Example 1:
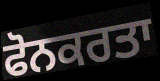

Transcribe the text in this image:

ਫੋਨਕਰਤਾ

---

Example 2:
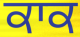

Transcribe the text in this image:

ਕਾਕ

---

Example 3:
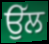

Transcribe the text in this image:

ਉੱਲ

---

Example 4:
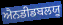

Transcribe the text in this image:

ਐਨਡੀਡਬਲਯੂ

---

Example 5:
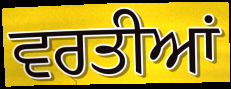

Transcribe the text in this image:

ਵਰਤੀਆਂ